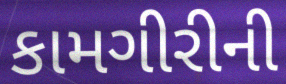
કામગીરીની